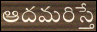
ఆదమరిస్తే